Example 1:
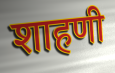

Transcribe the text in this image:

शाहणी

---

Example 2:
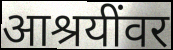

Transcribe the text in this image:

आश्रयींवर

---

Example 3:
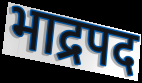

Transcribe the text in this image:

भाद्रपद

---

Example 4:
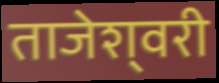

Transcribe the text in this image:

ताजेश्वरी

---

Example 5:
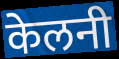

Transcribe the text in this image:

केलनी